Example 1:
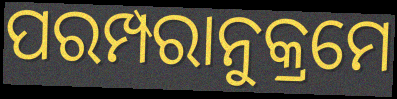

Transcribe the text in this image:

ପରମ୍ପରାନୁକ୍ରମେ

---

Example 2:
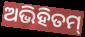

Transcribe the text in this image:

ଅଭିହିତମ୍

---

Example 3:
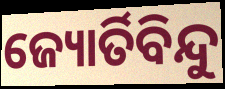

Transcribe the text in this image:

ଜ୍ୟୋର୍ତିବିନ୍ଦୁ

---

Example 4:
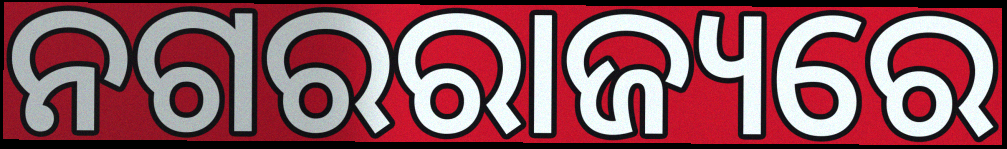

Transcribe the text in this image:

ନଗରରାଜ୍ୟରେ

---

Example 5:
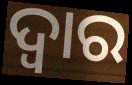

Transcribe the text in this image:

ଦ୍ୱାର